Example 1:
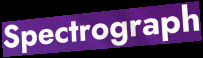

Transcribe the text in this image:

Spectrograph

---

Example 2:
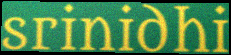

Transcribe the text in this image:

srinidhi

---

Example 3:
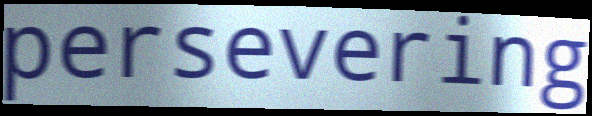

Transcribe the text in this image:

persevering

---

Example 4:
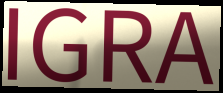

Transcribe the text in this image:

IGRA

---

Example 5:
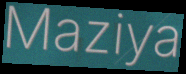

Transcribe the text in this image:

Maziya